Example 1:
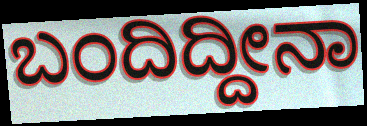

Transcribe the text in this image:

ಬಂದಿದ್ದೀನಾ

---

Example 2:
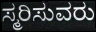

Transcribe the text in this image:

ಸ್ಮರಿಸುವರು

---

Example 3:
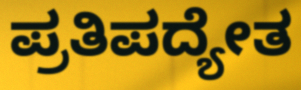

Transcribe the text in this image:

ಪ್ರತಿಪದ್ಯೇತ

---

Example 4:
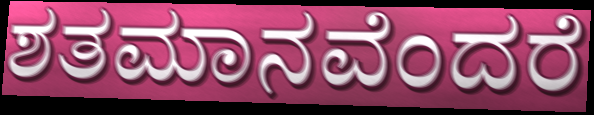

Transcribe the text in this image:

ಶತಮಾನವೆಂದರೆ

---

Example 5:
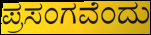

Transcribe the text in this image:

ಪ್ರಸಂಗವೆಂದು